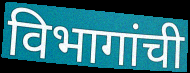
विभागांची